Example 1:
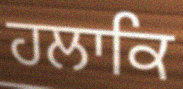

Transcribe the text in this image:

ਹਲਾਕਿ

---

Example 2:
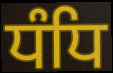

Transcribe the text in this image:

ਧੰਧਿ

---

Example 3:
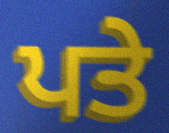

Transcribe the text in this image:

ਪਤੇ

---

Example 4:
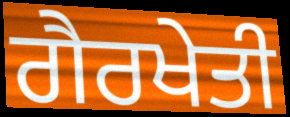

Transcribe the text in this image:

ਗੈਰਖੇਤੀ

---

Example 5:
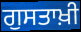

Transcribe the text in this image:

ਗੁਸਤਾਖ਼ੀ